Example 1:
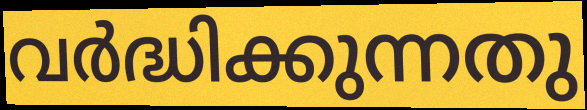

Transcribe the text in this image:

വർദ്ധിക്കുന്നതു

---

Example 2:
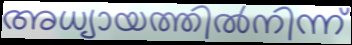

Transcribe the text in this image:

അധ്യായത്തിൽനിന്ന്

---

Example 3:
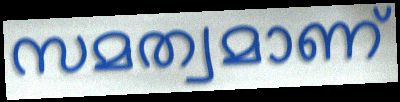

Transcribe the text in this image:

സമത്വമാണ്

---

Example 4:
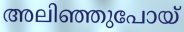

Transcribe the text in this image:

അലിഞ്ഞുപോയ്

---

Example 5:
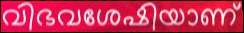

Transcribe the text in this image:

വിഭവശേഷിയാണ്